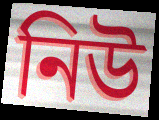
নিউ